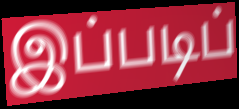
இப்படிப்